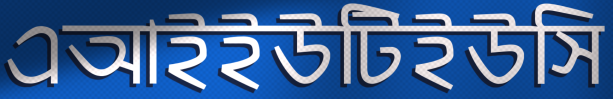
এআইইউটিইউসি